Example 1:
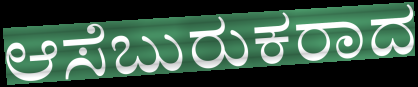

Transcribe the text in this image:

ಆಸೆಬುರುಕರಾದ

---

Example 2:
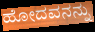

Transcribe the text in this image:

ಹೋದವನನ್ನು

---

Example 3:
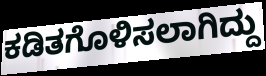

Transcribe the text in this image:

ಕಡಿತಗೊಳಿಸಲಾಗಿದ್ದು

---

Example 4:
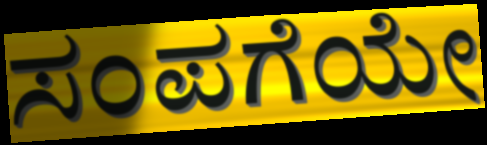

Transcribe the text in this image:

ಸಂಪಗೆಯೇ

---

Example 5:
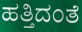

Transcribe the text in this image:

ಹತ್ತಿದಂತೆ